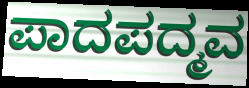
ಪಾದಪದ್ಮವ